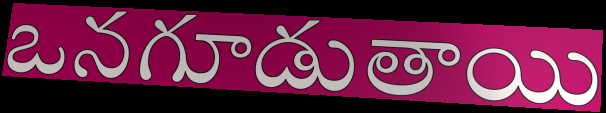
ఒనగూడుతాయి